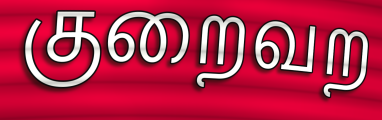
குறைவற